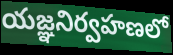
యజ్ఞనిర్వహణలో